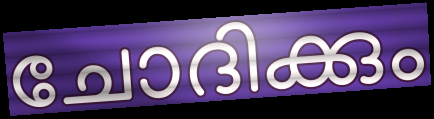
ചോദിക്കും